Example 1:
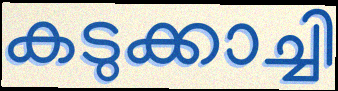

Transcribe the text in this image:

കടുക്കാച്ചി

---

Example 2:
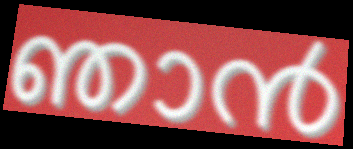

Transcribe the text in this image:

ഞാൻ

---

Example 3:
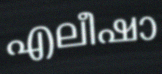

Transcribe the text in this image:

എലീഷാ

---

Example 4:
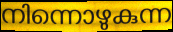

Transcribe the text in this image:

നിന്നൊഴുകുന്ന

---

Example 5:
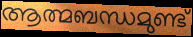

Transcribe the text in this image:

ആത്മബന്ധമുണ്ട്